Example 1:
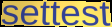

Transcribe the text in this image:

settest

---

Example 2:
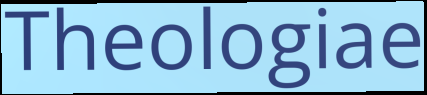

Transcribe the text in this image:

Theologiae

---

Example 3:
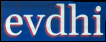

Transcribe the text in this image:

evdhi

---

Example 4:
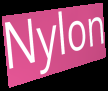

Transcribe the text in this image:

Nylon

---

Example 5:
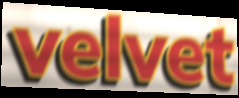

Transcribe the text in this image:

velvet